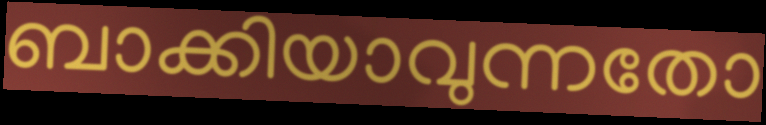
ബാക്കിയാവുന്നതോ